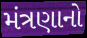
મંત્રણાનો